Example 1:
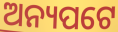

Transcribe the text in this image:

ଅନ୍ୟପଟେ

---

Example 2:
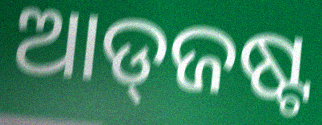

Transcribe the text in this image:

ଆଡ୍‌ଜଷ୍ଟ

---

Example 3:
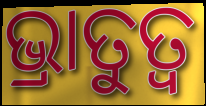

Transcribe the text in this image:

ଭ୍ରାତୁତ୍ଵ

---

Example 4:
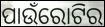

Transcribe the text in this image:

ପାଉଁରୋଟିର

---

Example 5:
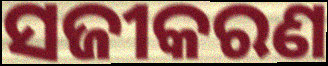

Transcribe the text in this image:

ସଜୀକରଣ